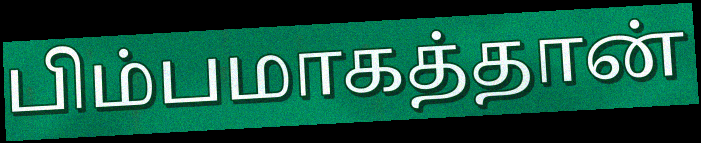
பிம்பமாகத்தான்